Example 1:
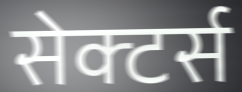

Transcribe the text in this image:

सेक्‍टर्स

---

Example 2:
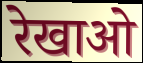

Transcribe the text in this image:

रेखाओ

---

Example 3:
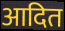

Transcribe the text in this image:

आदित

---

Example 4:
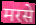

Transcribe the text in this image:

मरसे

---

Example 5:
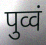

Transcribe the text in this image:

पुव्वं